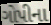
ગોપીના